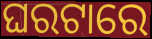
ଘରଟାରେ